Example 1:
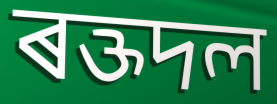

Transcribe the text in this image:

ৰক্তদল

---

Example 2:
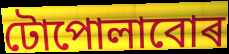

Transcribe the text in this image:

টোপোলাবোৰ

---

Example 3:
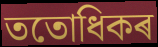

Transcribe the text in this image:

ততোধিকৰ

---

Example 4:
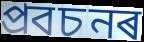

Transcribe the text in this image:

প্ৰবচনৰ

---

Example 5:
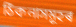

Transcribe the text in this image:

ঠিকনাসমূহৰ